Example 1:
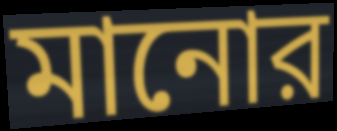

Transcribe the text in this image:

মানোর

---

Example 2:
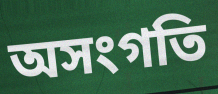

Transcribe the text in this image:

অসংগতি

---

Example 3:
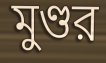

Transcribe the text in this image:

মুণ্ডর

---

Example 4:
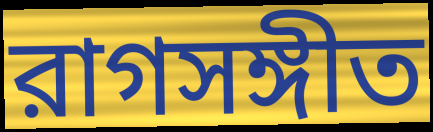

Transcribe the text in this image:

রাগসঙ্গীত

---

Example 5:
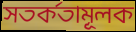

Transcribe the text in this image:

সতর্কতামূলক